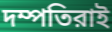
দম্পতিরাই